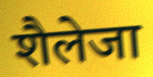
शैलेजा